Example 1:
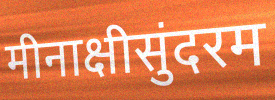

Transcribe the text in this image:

मीनाक्षीसुंदरम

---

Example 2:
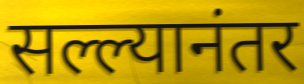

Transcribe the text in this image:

सल्ल्यानंतर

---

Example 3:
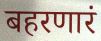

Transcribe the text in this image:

बहरणारं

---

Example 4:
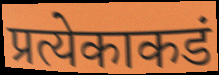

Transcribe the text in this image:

प्रत्येकाकडं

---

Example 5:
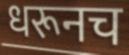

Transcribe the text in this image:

धरूनच